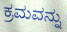
ಕ್ರಮವನ್ನು